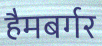
हैमबर्गर